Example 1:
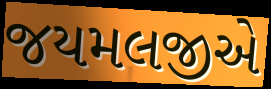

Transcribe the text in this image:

જયમલજીએ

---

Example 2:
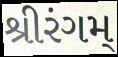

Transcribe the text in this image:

શ્રીરંગમ્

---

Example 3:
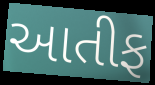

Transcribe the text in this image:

આતીફ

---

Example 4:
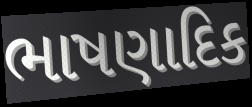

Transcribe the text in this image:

ભાષણાદિક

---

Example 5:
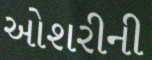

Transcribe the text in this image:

ઓશરીની